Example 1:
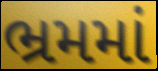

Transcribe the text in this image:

ભ્રમમાં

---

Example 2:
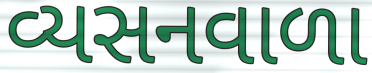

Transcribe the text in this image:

વ્યસનવાળા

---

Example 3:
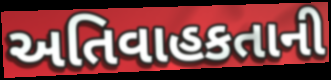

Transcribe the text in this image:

અતિવાહકતાની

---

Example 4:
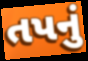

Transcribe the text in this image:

તપનું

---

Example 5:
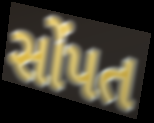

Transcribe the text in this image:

સોંપત